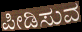
ಪೀಡಿಸುವ